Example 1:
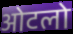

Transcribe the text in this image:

ओटलो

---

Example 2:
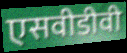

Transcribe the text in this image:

एसवीडीवी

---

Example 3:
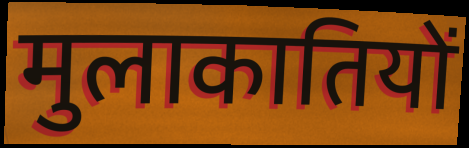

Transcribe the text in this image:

मुलाकातियों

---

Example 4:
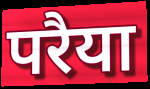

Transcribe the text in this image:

परैया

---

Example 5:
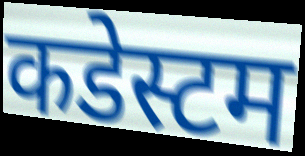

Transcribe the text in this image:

कडेस्टम